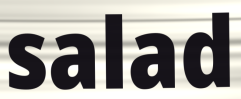
salad